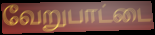
வேறுபாட்டை